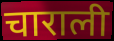
चाराली